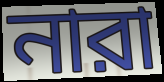
নারা